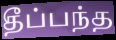
தீப்பந்த